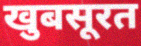
खुबसूरत